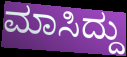
ಮಾಸಿದ್ದು